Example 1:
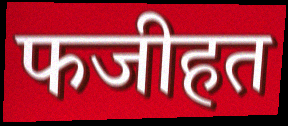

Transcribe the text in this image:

फजीहत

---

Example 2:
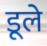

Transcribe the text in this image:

डूले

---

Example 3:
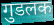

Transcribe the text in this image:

गुडलक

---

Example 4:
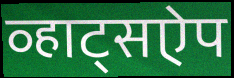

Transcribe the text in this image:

व्हाट्सऐप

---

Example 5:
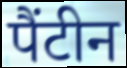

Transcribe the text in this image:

पैंटीन